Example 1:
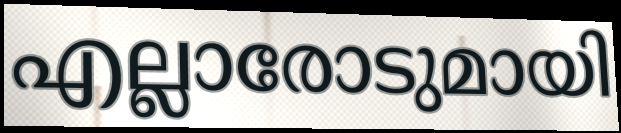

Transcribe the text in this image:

എല്ലാരോടുമായി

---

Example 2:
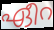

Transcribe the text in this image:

ഏീറ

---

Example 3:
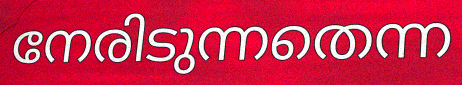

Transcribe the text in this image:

നേരിടുന്നതെന്ന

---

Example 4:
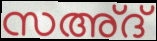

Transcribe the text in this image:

സഅ്ദ്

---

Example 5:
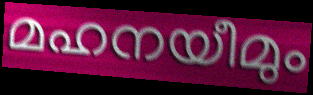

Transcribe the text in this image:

മഹനയീമും